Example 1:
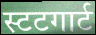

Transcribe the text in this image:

स्टटगार्ट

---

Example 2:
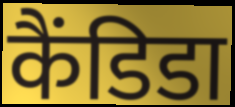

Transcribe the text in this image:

कैंडिडा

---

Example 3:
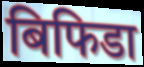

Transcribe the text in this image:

बिफिडा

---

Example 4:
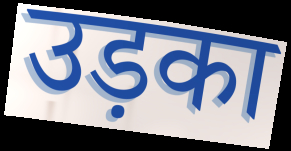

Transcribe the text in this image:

उड़का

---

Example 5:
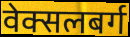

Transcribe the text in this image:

वेक्सलबर्ग